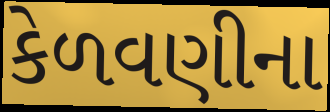
કેળવણીના